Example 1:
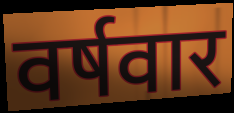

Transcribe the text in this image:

वर्षवार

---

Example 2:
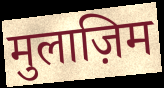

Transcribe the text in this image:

मुलाज़िम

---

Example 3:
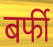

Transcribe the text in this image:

बर्फी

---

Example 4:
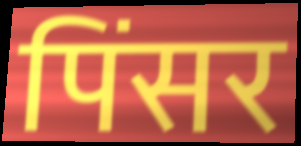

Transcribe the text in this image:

पिंसर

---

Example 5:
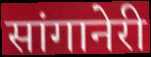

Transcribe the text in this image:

सांगानेरी